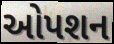
ઓપશન